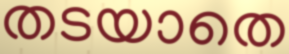
തടയാതെ